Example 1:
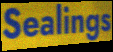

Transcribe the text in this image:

Sealings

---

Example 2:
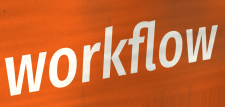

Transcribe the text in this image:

workflow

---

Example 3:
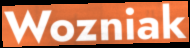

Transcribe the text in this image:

Wozniak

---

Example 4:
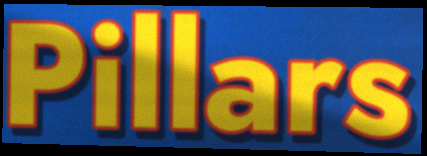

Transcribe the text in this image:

Pillars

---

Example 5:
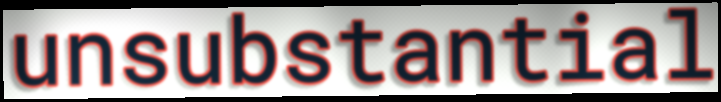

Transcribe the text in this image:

unsubstantial